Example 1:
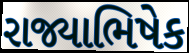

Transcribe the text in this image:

રાજ્યાભિષેક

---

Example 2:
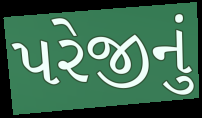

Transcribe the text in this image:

પરેજીનું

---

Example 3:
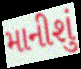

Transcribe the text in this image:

માનીશું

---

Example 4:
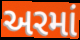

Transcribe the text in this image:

અરમાં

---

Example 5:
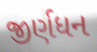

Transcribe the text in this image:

જીર્ણધન